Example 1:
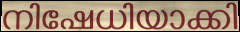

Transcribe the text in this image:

നിഷേധിയാക്കി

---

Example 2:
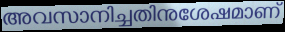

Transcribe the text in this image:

അവസാനിച്ചതിനുശേഷമാണ്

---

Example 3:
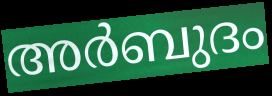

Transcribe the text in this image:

അർബുദം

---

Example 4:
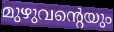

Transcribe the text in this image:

മുഴുവന്റെയും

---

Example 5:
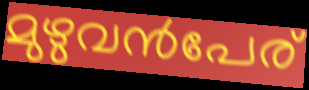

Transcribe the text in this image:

മുഴുവൻപേര്